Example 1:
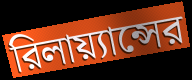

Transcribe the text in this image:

রিলায়্যান্সের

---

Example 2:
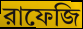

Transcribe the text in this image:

রাফেজি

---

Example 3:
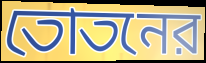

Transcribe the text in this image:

তোতনের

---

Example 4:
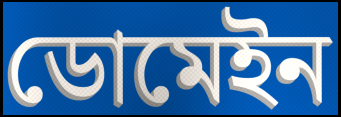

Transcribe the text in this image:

ডোমেইন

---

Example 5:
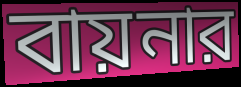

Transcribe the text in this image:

বায়নার